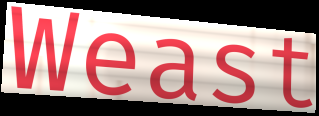
Weast